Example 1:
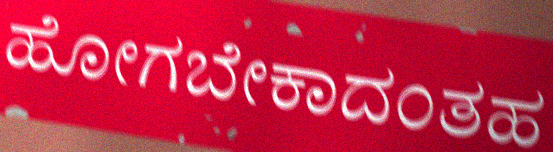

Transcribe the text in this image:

ಹೋಗಬೇಕಾದಂತಹ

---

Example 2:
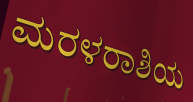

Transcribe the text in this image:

ಮರಳರಾಶಿಯ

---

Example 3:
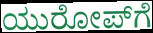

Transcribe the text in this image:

ಯುರೋಪ್‌ಗೆ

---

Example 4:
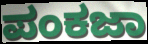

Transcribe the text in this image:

ಪಂಕಜಾ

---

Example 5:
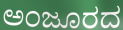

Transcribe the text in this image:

ಅಂಜೂರದ